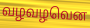
வழவழவென